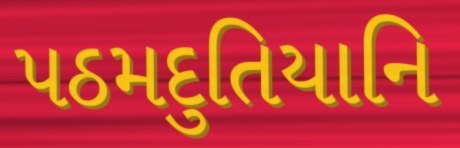
પઠમદુતિયાનિ